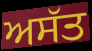
ਅਸੱਤ